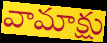
వామాక్షు